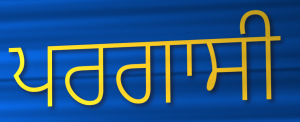
ਪਰਗਾਸੀ